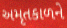
અમૃતકાળને